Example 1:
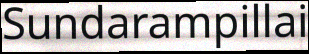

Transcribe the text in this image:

Sundarampillai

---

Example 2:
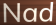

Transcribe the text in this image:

Nad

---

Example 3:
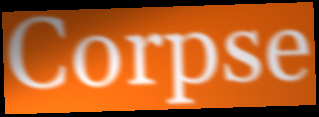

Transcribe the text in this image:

Corpse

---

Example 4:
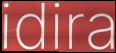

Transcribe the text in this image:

idira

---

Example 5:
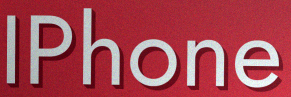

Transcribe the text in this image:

IPhone